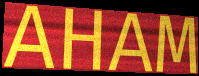
AHAM